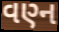
વણ્ન